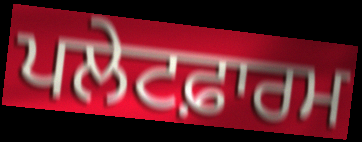
ਪਲੇਟਫ਼ਾਰਮ